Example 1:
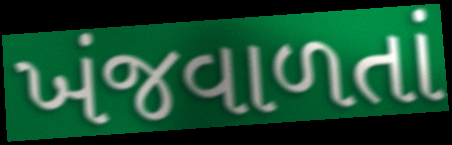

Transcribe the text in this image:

ખંજવાળતાં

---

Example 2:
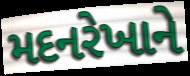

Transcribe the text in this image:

મદનરેખાને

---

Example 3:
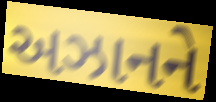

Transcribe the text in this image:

અઝાનને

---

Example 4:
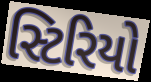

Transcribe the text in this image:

સ્ટિરિયો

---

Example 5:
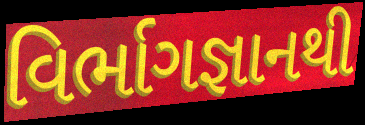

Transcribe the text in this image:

વિર્ભાગજ્ઞાનથી